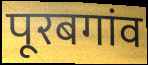
पूरबगांव